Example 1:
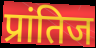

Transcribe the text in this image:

प्रांतिज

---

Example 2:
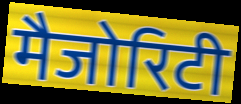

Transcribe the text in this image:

मैजोरिटी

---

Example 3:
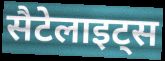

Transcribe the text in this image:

सैटेलाइट्स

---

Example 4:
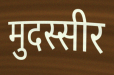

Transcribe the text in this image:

मुदस्सीर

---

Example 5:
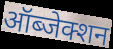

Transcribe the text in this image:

ऑब्जेक्शन